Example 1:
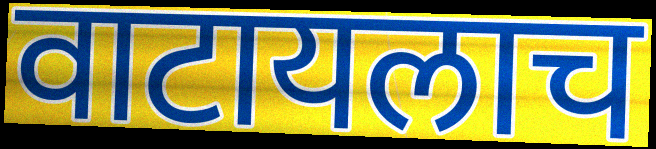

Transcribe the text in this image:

वाटायलाच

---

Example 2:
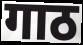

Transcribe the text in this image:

गाठ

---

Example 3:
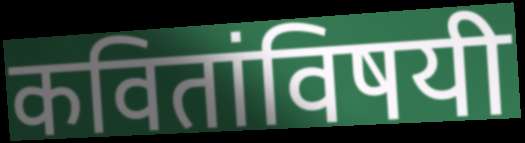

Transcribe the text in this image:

कवितांविषयी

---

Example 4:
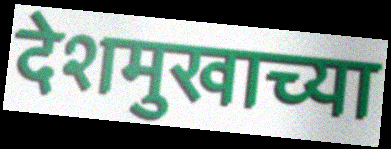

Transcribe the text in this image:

देशमुखाच्या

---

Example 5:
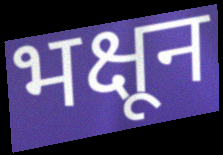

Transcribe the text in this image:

भक्षून